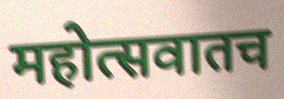
महोत्सवातच